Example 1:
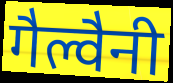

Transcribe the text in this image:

गैल्वैनी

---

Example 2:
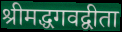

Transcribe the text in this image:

श्रीमद्धगवद्वीता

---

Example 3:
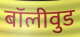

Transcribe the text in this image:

बॉलीवुड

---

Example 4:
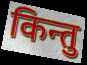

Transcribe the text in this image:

किन्तु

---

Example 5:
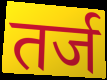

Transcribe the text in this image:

तर्ज